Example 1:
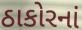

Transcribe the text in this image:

ઠાકોરનાં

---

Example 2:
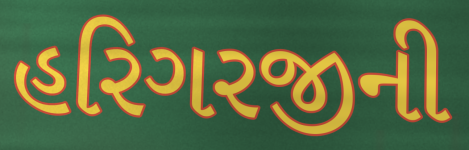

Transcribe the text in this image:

હરિગરજીની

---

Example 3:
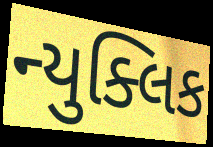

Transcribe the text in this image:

ન્યુક્લિક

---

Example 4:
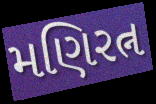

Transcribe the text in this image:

મણિરત્ન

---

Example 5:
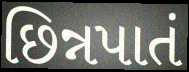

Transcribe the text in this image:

છિન્નપાતં